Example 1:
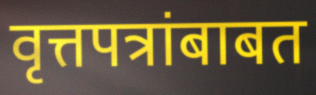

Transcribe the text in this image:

वृत्तपत्रांबाबत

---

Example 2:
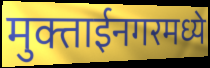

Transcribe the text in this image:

मुक्ताईनगरमध्ये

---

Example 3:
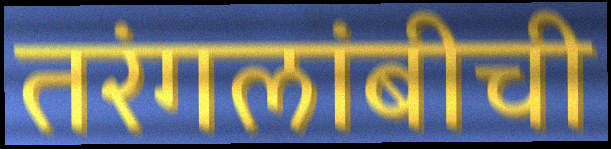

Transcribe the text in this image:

तरंगलांबीची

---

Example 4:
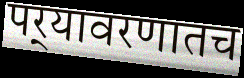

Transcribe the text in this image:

पर्यावरणातच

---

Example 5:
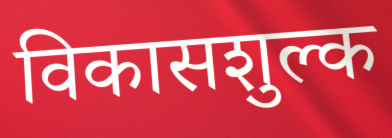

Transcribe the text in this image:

विकासशुल्क